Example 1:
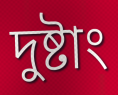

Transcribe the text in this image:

দুষ্টাং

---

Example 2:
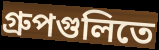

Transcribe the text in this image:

গ্রুপগুলিতে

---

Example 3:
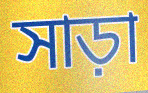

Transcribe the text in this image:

সাড়া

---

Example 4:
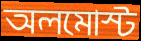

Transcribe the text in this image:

অলমোস্ট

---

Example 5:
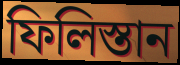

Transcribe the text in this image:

ফিলিস্তান